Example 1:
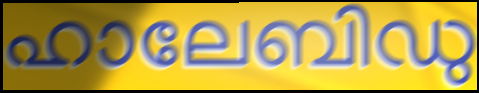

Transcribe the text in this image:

ഹാലേബിഡു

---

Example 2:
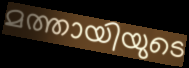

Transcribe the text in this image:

മത്തായിയുടെ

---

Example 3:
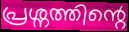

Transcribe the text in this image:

പ്രശ്നത്തിന്റെ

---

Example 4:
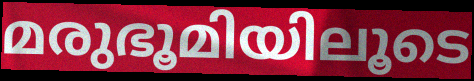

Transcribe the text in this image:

മരുഭൂമിയിലൂടെ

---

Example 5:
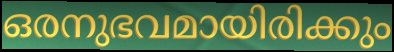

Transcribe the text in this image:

ഒരനുഭവമായിരിക്കും